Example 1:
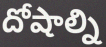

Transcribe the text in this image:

దోషాల్ని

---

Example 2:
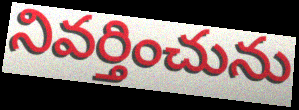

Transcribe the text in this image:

నివర్తించును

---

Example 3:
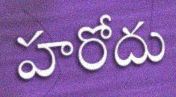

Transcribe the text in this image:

హరోదు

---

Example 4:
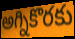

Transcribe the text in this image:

అగ్నికొరకు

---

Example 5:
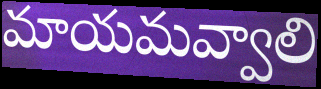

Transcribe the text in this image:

మాయమవ్వాలి